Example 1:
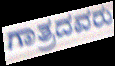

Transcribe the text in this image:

ಗಾತ್ರದವರು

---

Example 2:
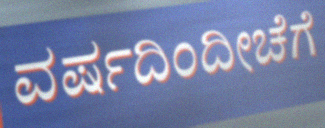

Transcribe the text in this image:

ವರ್ಷದಿಂದೀಚೆಗೆ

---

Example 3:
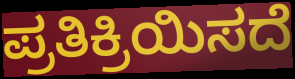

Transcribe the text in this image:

ಪ್ರತಿಕ್ರಿಯಿಸದೆ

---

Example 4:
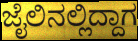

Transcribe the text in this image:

ಜೈಲಿನಲ್ಲಿದ್ದಾಗ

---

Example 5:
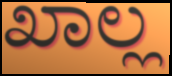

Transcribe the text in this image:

ಖಾಲ್ಲ